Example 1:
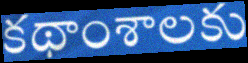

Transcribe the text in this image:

కథాంశాలకు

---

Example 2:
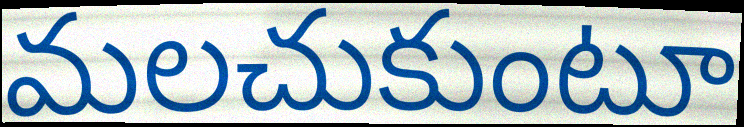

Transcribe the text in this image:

మలచుకుంటూ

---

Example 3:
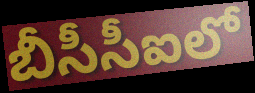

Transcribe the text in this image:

బీసీసీఐలో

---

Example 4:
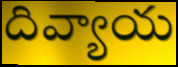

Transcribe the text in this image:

దివ్యాయ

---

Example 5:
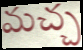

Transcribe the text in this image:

మచ్చ